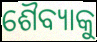
ଶୈବ୍ୟାକୁ